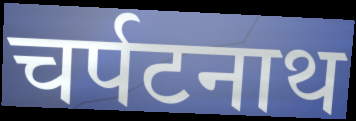
चर्पटनाथ